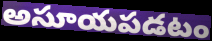
అసూయపడటం